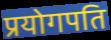
प्रयोगपति